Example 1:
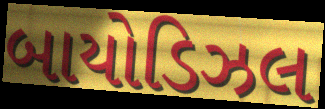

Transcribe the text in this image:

બાયોડિઝલ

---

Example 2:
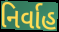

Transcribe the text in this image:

નિર્વાહ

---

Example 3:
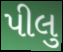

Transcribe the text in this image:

પીલુ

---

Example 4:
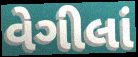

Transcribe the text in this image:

વેગીલાં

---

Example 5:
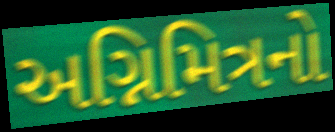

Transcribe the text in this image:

અગ્નિમિત્રનો